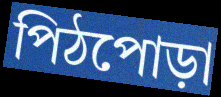
পিঠপোড়া